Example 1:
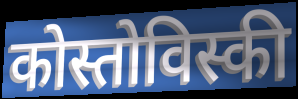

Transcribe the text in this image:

कोस्तोविस्की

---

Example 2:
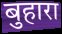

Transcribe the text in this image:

बुहारा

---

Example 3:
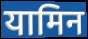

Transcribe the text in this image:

यामिन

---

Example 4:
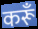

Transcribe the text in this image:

करूँ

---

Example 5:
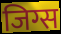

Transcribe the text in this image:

जिग्स